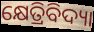
କ୍ଷେତ୍ରିବିଦ୍ୟା